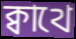
ক্বাথে